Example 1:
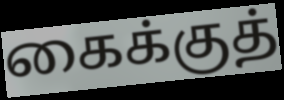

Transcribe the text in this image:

கைக்குத்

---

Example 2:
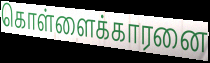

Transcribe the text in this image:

கொள்ளைக்காரனை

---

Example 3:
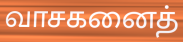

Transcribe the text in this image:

வாசகனைத்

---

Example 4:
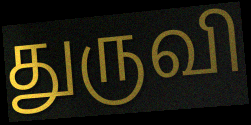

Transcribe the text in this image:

துருவி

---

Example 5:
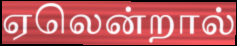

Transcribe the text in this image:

ஏலென்றால்